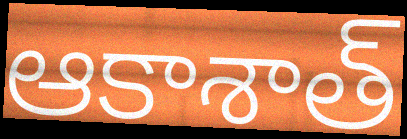
ఆకాశాత్